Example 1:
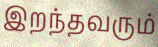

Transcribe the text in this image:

இறந்தவரும்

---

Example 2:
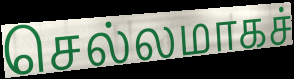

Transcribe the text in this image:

செல்லமாகச்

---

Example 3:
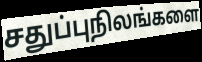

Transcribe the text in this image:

சதுப்புநிலங்களை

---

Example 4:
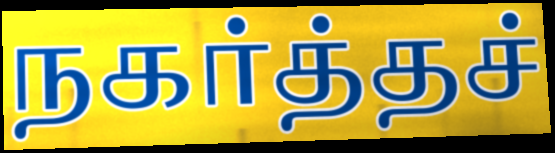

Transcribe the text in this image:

நகர்த்தச்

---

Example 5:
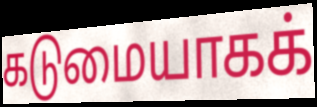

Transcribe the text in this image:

கடுமையாகக்